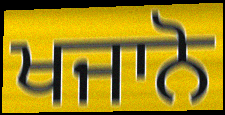
ਖਜਾਨੋ